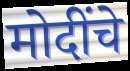
मोदींचे